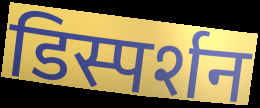
डिस्पर्शन